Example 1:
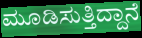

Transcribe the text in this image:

ಮೂಡಿಸುತ್ತಿದ್ದಾನೆ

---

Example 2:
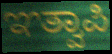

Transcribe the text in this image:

ಞತ್ವಾಪಿ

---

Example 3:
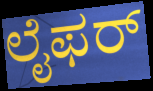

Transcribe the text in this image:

ಲೈಫರ್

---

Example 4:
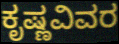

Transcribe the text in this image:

ಕೃಷ್ಣವಿವರ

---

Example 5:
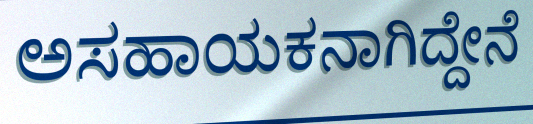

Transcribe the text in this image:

ಅಸಹಾಯಕನಾಗಿದ್ದೇನೆ